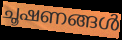
ചൂഷണങ്ങൾ